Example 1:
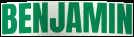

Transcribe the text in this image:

BENJAMIN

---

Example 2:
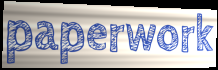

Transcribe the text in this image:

paperwork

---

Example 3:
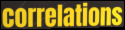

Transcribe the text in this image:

correlations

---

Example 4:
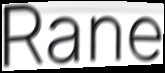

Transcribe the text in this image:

Rane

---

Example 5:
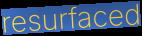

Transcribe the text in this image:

resurfaced